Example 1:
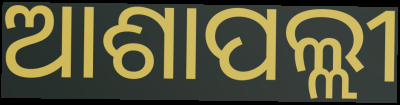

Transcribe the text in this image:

ଆଶାପଲ୍ଲୀ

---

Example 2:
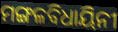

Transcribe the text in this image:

ମଙ୍ଗଳବିଧାୟିନୀ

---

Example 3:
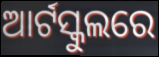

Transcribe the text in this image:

ଆର୍ଟସ୍କୁଲରେ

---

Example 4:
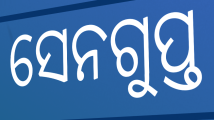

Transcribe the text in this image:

ସେନଗୁପ୍ତ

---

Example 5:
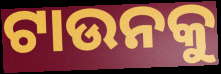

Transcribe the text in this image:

ଟାଉନକୁ